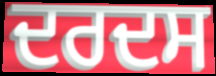
ਦਰਦਸ